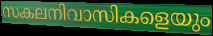
സകലനിവാസികളെയും